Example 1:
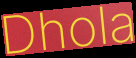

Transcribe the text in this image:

Dhola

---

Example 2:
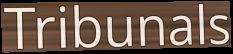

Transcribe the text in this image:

Tribunals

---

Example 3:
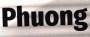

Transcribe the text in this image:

Phuong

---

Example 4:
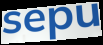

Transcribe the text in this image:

sepu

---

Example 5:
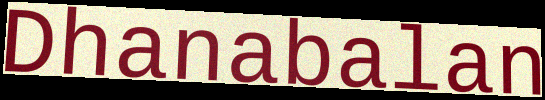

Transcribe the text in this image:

Dhanabalan